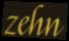
zehn